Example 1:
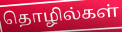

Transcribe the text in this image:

தொழில்கள்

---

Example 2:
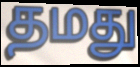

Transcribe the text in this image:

தமது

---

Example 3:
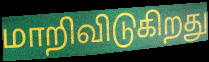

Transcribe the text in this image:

மாறிவிடுகிறது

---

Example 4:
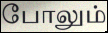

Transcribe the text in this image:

போலும்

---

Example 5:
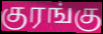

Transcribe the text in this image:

குரங்கு